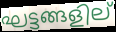
ഘട്ടങ്ങളില്